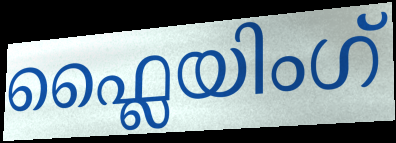
ഫ്ലൈയിംഗ്